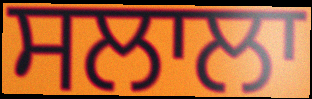
ਸਲਾਲਾ